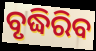
ବୃଦ୍ଧିରିବ